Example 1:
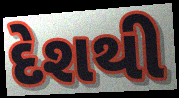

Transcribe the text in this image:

દેશથી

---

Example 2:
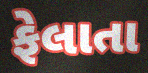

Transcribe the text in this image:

ફેલાતા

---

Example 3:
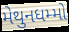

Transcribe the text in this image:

મેથુનધમ્મો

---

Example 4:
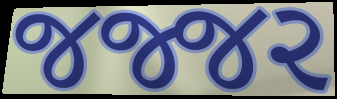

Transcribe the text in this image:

જજ્જર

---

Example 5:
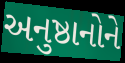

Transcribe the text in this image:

અનુષ્ઠાનોને